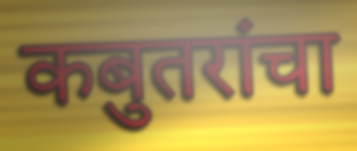
कबुतरांचा